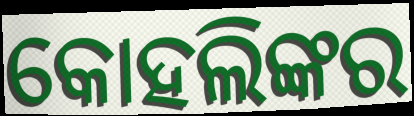
କୋହଲିଙ୍କର